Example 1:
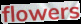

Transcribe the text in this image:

flowers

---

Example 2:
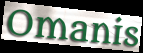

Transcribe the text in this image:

Omanis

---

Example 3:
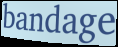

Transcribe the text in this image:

bandage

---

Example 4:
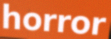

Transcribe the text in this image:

horror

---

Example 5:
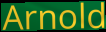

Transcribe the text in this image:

Arnold